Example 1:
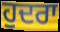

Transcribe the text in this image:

ਹੁਦਰਾ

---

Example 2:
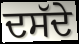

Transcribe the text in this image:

ਦਸੱਦੇ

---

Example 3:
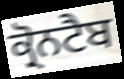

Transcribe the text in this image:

ਕ੍ਰੋਨਟੈਬ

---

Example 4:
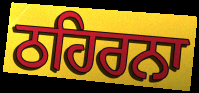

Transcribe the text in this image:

ਠਹਿਰਨਾ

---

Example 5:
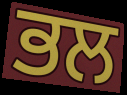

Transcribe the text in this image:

ਭਲ